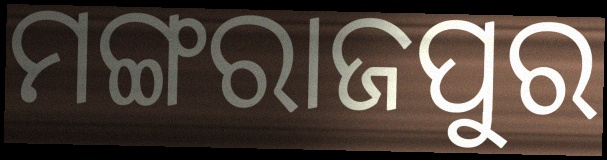
ମଙ୍ଗରାଜପୁର